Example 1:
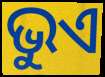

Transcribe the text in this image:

ଭୁଏ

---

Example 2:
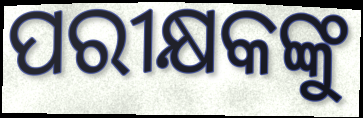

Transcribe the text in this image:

ପରୀକ୍ଷକଙ୍କୁ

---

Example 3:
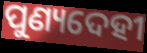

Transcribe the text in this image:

ପୁଣ୍ୟଦେହୀ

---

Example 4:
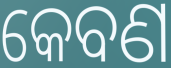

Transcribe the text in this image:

କେବଣ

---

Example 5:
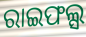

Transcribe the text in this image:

ରାଇଫଲ୍ସ